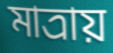
মাত্ৰায়